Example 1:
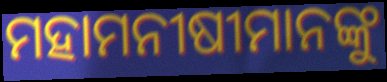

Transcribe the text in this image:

ମହାମନୀଷୀମାନଙ୍କୁ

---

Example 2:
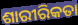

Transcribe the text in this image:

ଶାରୀରିକତା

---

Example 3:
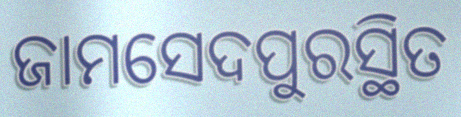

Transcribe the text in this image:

ଜାମସେଦପୁରସ୍ଥିତ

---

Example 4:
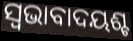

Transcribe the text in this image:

ସ୍ଵଭାବାଦୟଶ୍ଚ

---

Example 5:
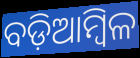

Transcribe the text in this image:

ବଡ଼ିଆମ୍ବିଳ